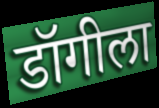
डॉगीला